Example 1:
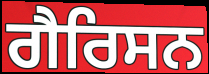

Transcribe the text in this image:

ਗੈਰਿਸਨ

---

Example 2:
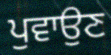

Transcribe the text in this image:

ਪੁਵਾਉਣ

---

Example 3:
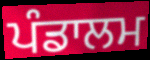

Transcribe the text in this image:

ਪੰਡਾਲਮ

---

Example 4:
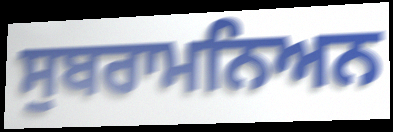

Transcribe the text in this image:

ਸੁਬਰਾਮਨਿਅਨ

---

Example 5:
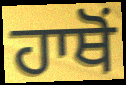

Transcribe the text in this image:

ਹਾਥੋਂ